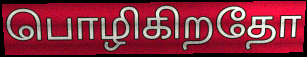
பொழிகிறதோ